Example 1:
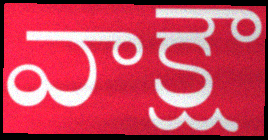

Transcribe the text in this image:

వాక్షౌ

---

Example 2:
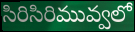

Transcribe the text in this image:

సిరిసిరిమువ్వలో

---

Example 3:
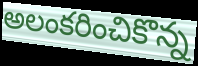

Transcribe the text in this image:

అలంకరించికొన్న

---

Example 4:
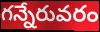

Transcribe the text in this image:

గన్నేరువరం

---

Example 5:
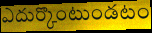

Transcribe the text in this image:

ఎదుర్కొంటుండటం